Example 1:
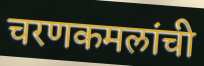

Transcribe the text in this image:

चरणकमलांची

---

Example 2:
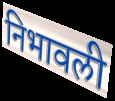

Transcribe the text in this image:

निभावली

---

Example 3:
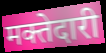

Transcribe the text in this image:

मक्तेदारी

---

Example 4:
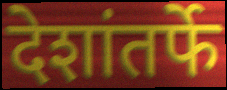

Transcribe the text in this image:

देशांतर्फे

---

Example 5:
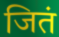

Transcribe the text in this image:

जितं